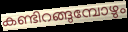
കണ്ടിറങ്ങുമ്പോഴും